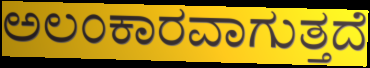
ಅಲಂಕಾರವಾಗುತ್ತದೆ